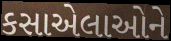
કસાએલાઓને